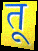
तू